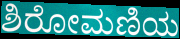
ಶಿರೋಮಣಿಯ